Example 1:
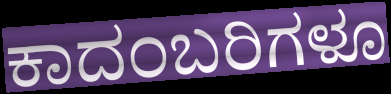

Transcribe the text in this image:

ಕಾದಂಬರಿಗಳೂ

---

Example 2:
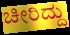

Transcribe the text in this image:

ಚೀರಿದ್ದು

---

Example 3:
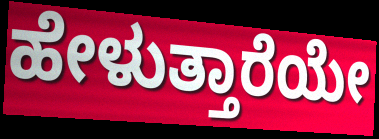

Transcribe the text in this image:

ಹೇಳುತ್ತಾರೆಯೇ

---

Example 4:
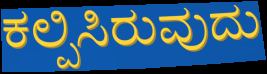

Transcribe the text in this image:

ಕಲ್ಪಿಸಿರುವುದು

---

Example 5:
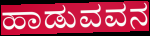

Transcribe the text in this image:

ಹಾಡುವವನ